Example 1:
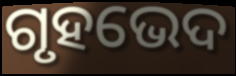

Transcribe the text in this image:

ଗୃହଭେଦ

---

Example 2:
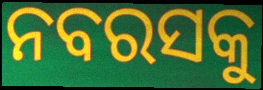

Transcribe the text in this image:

ନବରସକୁ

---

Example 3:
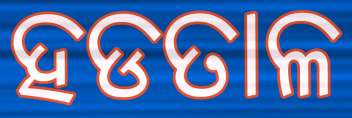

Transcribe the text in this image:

ହଡତାଳ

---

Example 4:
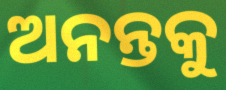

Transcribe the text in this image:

ଅନନ୍ତକୁ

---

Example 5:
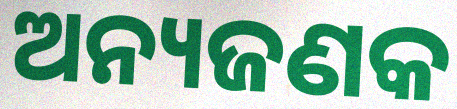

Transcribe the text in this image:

ଅନ୍ୟଜଣକ